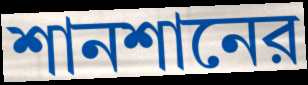
শানশানের